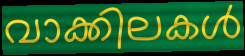
വാക്കിലകൾ